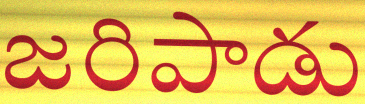
జరిపాడు